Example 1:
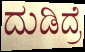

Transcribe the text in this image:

ದುಡಿದ್ರೆ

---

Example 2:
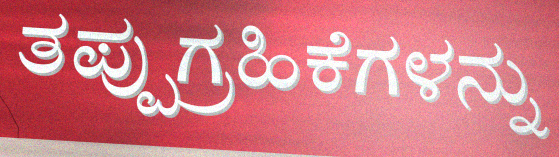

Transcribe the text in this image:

ತಪ್ಪುಗ್ರಹಿಕೆಗಳನ್ನು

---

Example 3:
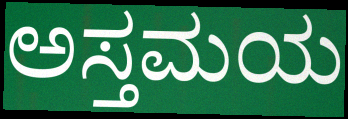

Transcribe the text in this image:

ಅಸ್ತಮಯ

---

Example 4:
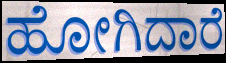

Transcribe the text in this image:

ಹೋಗಿದಾರೆ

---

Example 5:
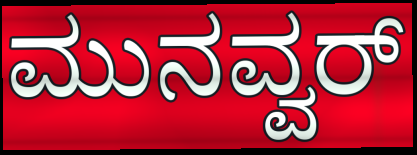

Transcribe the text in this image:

ಮುನವ್ವರ್